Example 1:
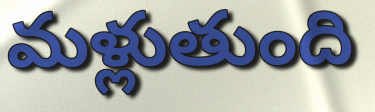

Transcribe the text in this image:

మళ్లుతుంది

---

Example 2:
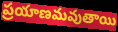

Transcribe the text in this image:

ప్రయాణమవుతాయి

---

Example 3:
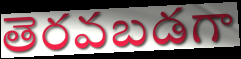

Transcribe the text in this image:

తెరవబడగా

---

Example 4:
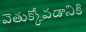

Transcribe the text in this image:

వెతుక్కోవడానికి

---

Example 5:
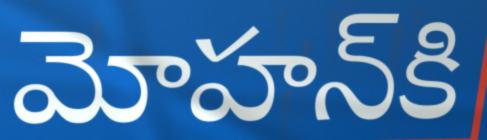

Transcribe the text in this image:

మోహన్‌కి